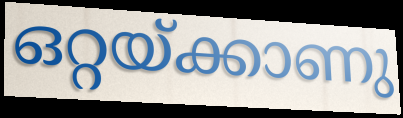
ഒറ്റയ്ക്കാണു